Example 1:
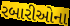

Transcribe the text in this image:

રબારીઓના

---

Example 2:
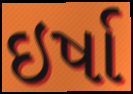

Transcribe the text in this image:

ઇર્ષા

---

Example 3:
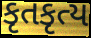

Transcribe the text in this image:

કૃતકૃત્ય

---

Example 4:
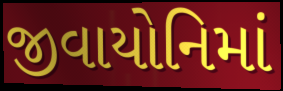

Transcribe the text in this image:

જીવાયોનિમાં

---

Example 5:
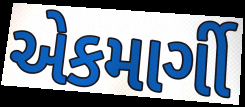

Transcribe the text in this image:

એકમાર્ગી